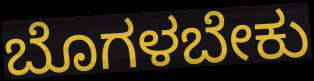
ಬೊಗಳಬೇಕು